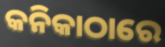
କନିକାଠାରେ